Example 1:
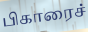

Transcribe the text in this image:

பிகாரைச்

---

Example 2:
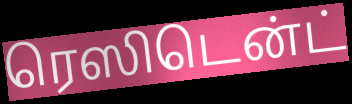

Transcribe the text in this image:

ரெஸிடென்ட்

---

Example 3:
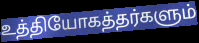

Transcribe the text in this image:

உத்தியோகத்தர்களும்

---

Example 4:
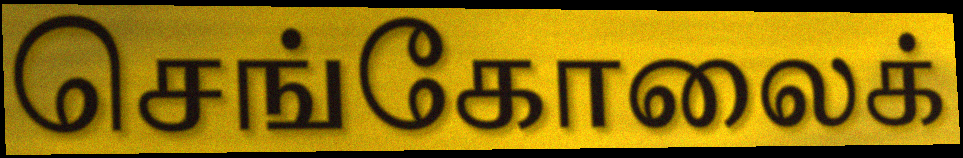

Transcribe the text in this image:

செங்கோலைக்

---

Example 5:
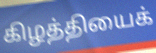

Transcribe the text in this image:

கிழத்தியைக்